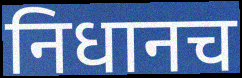
निधानच